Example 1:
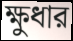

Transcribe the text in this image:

ক্ষুধার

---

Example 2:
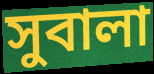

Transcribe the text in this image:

সুবালা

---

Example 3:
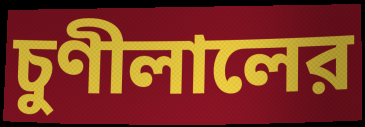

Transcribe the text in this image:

চুণীলালের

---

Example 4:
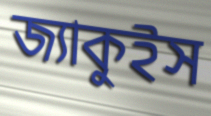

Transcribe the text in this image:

জ্যাকুইস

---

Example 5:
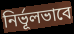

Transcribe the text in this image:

নির্ভূলভাবে